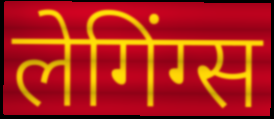
लेगिंग्स